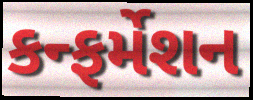
કન્ફર્મેશન